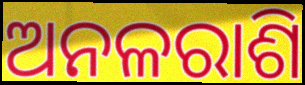
ଅନଳରାଶି